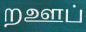
றஊப்